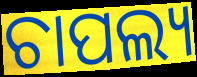
ଚାପଲ୍ୟ